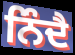
ਨਿੰਦੈ